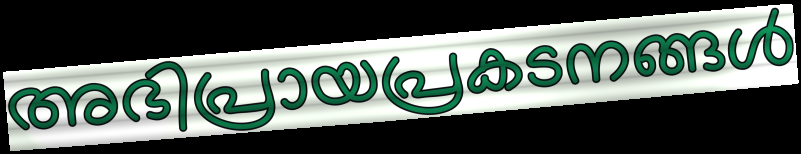
അഭിപ്രായപ്രകടനങ്ങൾ